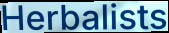
Herbalists